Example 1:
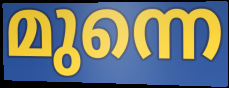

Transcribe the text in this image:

മുന്നെ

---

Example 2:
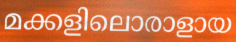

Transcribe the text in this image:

മക്കളിലൊരാളായ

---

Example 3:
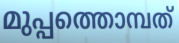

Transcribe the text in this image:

മുപ്പത്തൊമ്പത്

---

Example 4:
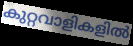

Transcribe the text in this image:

കുറ്റവാളികളിൽ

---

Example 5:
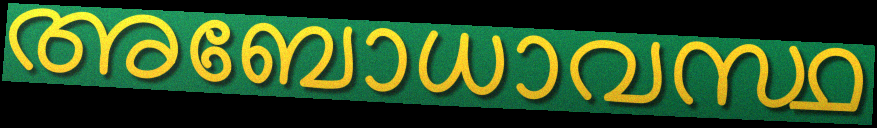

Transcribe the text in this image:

അബോധാവസ്ഥ